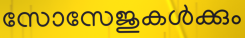
സോസേജുകൾക്കും